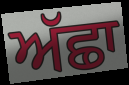
ਅੱਛਾ